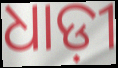
ଧାଡ଼ୀ